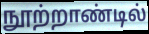
நூற்றாண்டில்